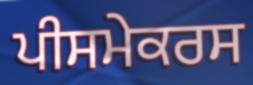
ਪੀਸਮੇਕਰਸ